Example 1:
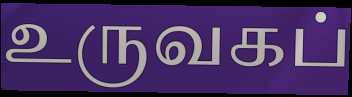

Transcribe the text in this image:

உருவகப்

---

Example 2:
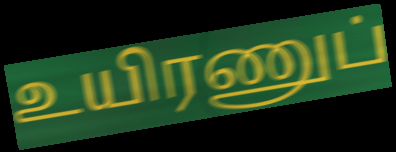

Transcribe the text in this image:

உயிரணுப்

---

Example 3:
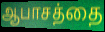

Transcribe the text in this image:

ஆபாசத்தை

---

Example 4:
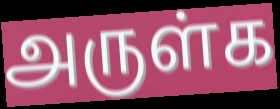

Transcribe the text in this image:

அருள்க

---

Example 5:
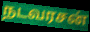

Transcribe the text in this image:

நடவரசன்